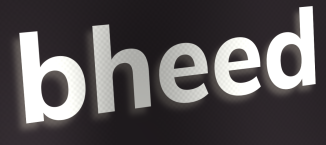
bheed